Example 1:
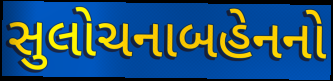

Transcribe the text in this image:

સુલોચનાબહેનનો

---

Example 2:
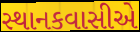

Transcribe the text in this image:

સ્થાનકવાસીએ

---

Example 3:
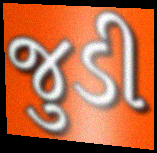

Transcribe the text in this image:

જુડી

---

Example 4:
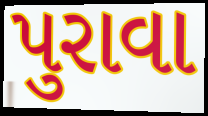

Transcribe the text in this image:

પુરાવા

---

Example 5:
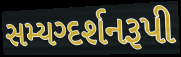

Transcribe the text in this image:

સમ્યગ્દર્શનરૂપી